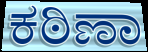
ಕಠಿಣಾ